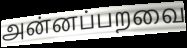
அன்னப்பறவை